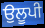
ਉਲੂਪੀ